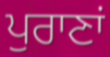
ਪੁਰਾਣਾਂ